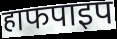
हाफपाइप